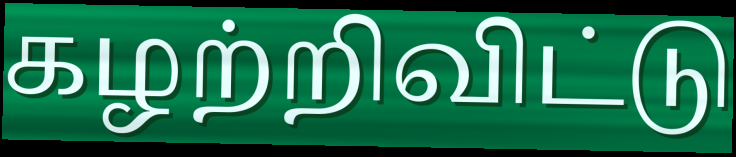
கழற்றிவிட்டு